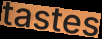
tastes